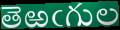
తెఱఁగుల